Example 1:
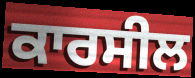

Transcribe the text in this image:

ਕਾਰਸੀਲ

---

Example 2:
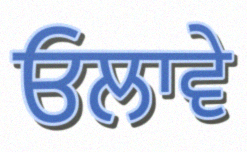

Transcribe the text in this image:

ਓਲਾਵੇ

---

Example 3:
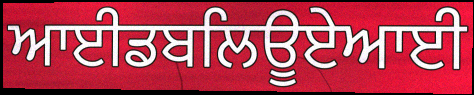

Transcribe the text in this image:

ਆਈਡਬਲਿਊਏਆਈ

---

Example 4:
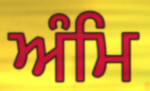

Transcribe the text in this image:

ਅੰਮਿ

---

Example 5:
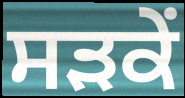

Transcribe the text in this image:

ਸੜਕੇਂ